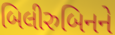
બિલીરુબિનને